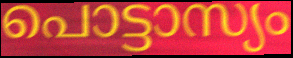
പൊട്ടാസ്യം